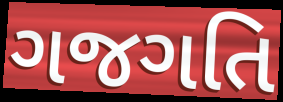
ગજગતિ